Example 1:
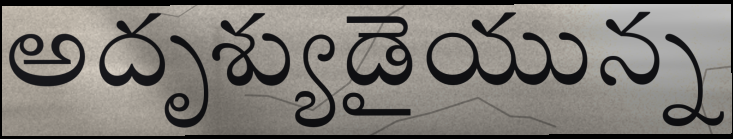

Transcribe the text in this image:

అదృశ్యుడైయున్న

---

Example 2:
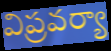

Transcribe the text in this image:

విప్రవర్యా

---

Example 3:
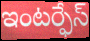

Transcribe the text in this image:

ఇంటర్ఫేస్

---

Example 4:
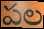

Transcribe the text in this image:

పల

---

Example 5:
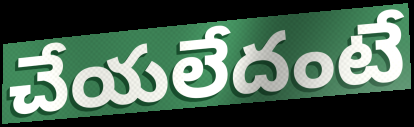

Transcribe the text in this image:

చేయలేదంటే